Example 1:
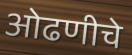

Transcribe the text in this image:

ओढणीचे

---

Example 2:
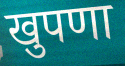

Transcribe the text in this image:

खुपणा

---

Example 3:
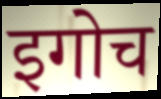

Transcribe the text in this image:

इगोच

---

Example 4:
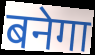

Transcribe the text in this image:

बनेगा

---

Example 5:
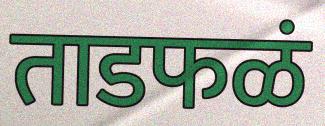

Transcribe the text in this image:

ताडफळं